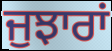
ਜੁਝਾਰਾਂ